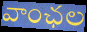
వాంఛల